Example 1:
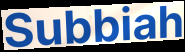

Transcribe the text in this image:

Subbiah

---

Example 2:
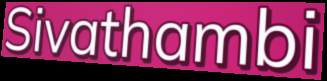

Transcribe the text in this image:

Sivathambi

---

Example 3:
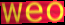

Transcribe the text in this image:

weo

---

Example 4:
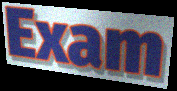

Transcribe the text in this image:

Exam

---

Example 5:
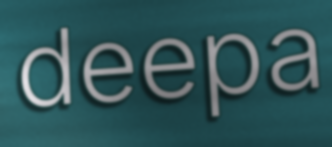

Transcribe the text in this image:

deepa